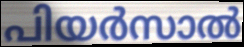
പിയർസാൽ